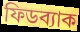
ফিডব্যাক